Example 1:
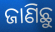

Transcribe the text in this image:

ଜାଣିଛୁ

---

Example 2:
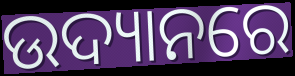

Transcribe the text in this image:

ଉଦ୍ୟାନରେ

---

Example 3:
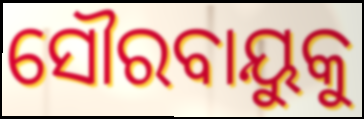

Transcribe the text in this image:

ସୌରବାୟୁକୁ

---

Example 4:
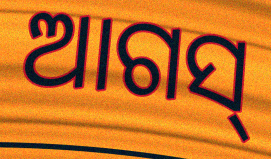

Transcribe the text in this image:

ଆଗସ୍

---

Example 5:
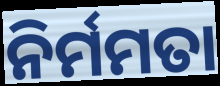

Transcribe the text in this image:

ନିର୍ମମତା